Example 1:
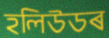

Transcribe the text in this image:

হলিউডৰ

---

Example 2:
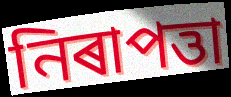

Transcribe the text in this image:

নিৰাপত্তা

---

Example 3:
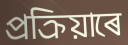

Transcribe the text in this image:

প্ৰক্ৰিয়াৰে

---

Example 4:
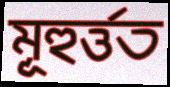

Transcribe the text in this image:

মূহুৰ্ত্তত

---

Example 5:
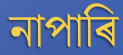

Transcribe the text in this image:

নাপাৰি